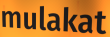
mulakat